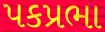
પકપ્રભા